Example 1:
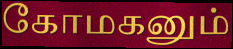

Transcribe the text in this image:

கோமகனும்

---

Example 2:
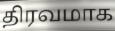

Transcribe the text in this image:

திரவமாக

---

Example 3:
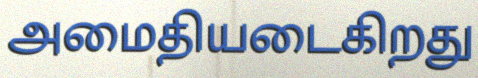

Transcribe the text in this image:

அமைதியடைகிறது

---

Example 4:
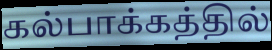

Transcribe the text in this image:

கல்பாக்கத்தில்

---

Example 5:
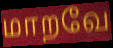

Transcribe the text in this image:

மாறவே